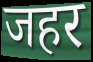
जहर